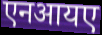
एनआयए